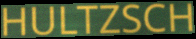
HULTZSCH